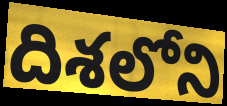
దిశలోని